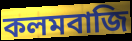
কলমবাজি